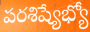
పరశిష్యేభ్యో